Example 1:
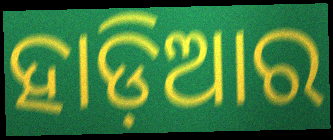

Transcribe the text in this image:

ହାଡ଼ିଆର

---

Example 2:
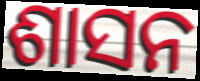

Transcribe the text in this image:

ଶାସନ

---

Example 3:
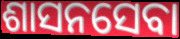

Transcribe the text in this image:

ଶାସନସେବା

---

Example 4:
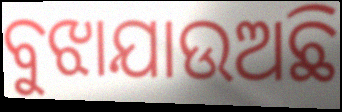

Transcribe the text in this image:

ବୁଝାଯାଉଅଛି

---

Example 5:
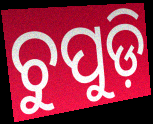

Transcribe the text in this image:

ଚୁପୁଡ଼ି